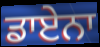
ਡਾਏਨਾ